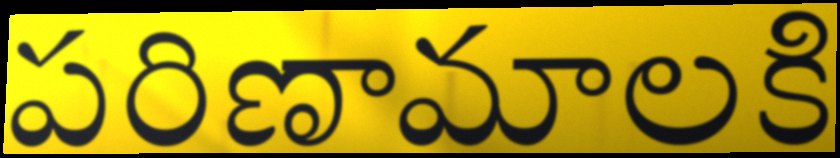
పరిణామాలకి